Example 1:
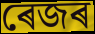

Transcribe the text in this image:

ৰেজৰ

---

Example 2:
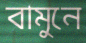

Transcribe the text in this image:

বামুনে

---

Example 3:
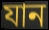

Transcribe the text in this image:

যান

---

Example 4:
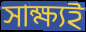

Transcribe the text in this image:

সাক্ষ্যই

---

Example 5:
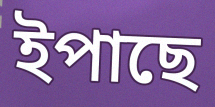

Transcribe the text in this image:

ইপাছে